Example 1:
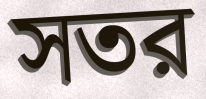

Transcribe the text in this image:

সতর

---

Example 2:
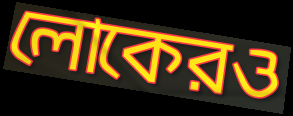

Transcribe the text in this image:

লোকেরও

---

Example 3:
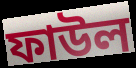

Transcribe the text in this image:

ফাউল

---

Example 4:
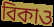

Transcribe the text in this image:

বিকাও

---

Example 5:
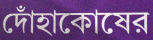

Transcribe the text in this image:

দোঁহাকোষের